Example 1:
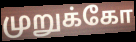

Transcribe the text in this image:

முறுக்கோ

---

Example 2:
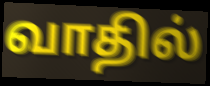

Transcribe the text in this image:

வாதில்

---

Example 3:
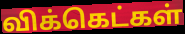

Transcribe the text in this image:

விக்கெட்கள்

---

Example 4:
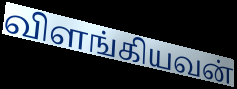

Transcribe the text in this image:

விளங்கியவன்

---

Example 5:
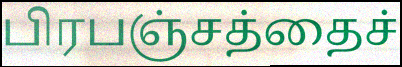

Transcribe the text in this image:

பிரபஞ்சத்தைச்